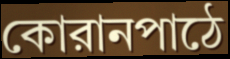
কোরানপাঠে